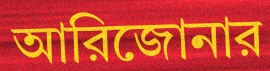
আরিজোনার